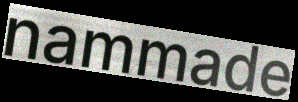
nammade